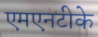
एमएनटीके